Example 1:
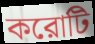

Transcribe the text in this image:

করোটি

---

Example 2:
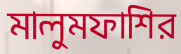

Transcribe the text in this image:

মালুমফাশির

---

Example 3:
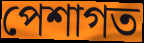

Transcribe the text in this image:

পেশাগত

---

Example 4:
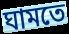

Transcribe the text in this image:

ঘামতে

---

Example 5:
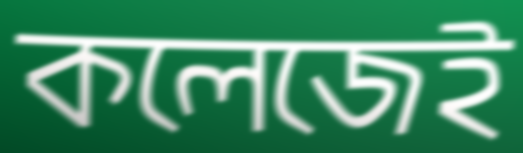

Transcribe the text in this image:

কলেজেই